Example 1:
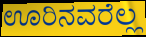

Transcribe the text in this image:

ಊರಿನವರೆಲ್ಲ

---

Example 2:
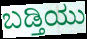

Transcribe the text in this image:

ಬಡ್ತಿಯು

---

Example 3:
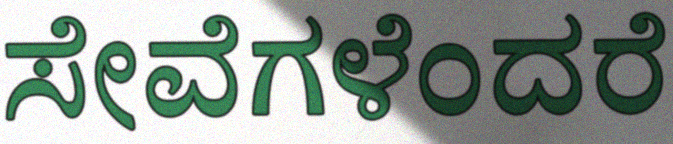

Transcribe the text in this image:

ಸೇವೆಗಳೆಂದರೆ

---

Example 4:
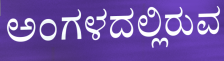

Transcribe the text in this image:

ಅಂಗಳದಲ್ಲಿರುವ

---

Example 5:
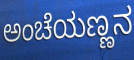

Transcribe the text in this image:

ಅಂಚೆಯಣ್ಣನ